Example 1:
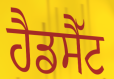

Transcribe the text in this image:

ਹੈਡਸੈੱਟ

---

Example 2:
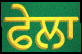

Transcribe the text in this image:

ਫੇਲਾ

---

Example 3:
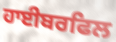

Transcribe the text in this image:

ਹਾਈਬਰਫਿਲ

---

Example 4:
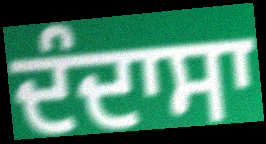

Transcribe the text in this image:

ਦੰਦਾਸਾ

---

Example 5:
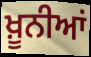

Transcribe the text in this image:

ਖ਼ੂਨੀਆਂ